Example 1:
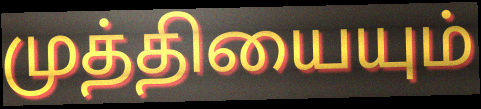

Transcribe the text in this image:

முத்தியையும்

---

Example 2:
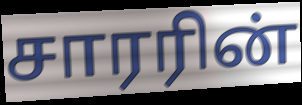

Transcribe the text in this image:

சாரரின்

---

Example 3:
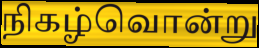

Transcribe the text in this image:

நிகழ்வொன்று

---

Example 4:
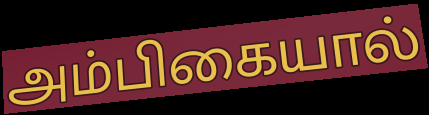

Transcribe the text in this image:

அம்பிகையால்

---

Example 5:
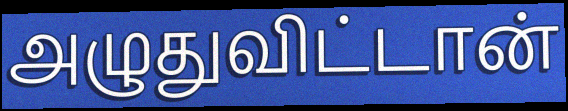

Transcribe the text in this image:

அழுதுவிட்டான்